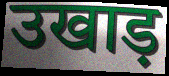
उखाड़